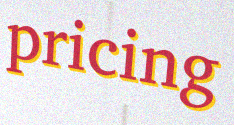
pricing